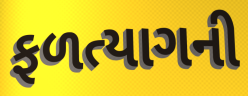
ફળત્યાગની